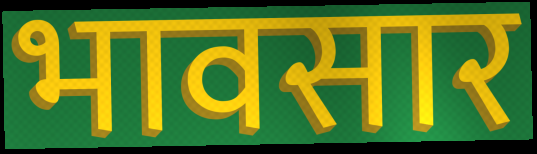
भावसार